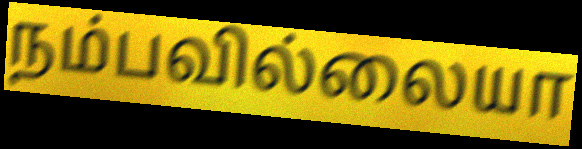
நம்பவில்லையா